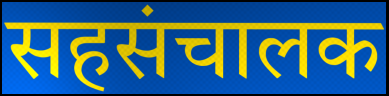
सहसंचालक